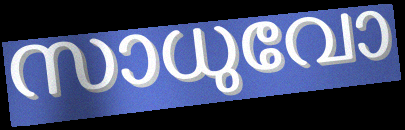
സാധുവോ